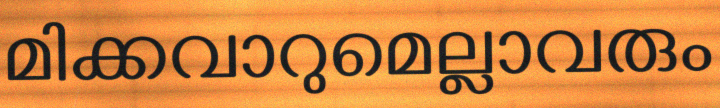
മിക്കവാറുമെല്ലാവരും